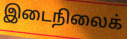
இடைநிலைக்